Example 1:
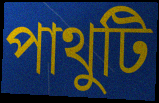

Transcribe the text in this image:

পাথুটি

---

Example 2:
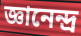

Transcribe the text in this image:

জ্ঞানেন্দ্র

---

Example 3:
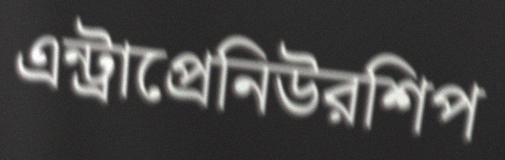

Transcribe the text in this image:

এন্ট্রাপ্রেনিউরশিপ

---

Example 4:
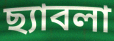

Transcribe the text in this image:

ছ্যাবলা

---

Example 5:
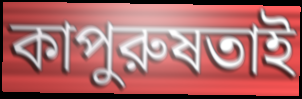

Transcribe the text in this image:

কাপুরুষতাই